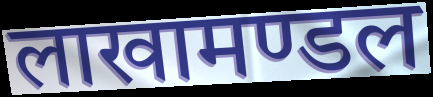
लाखामण्डल